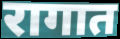
रागात